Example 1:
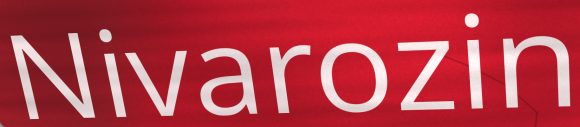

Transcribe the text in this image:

Nivarozin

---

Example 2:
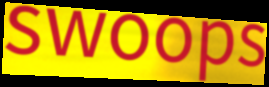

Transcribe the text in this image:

swoops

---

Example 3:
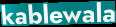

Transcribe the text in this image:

kablewala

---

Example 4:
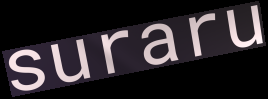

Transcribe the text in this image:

suraru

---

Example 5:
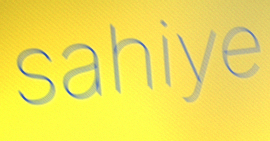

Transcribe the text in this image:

sahiye